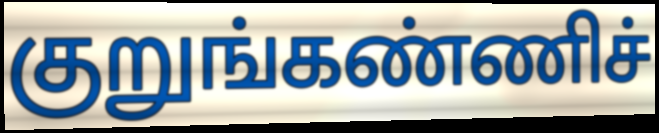
குறுங்கண்ணிச்